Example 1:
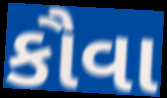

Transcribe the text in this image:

કૌવા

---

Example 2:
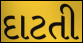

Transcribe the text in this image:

દાટતી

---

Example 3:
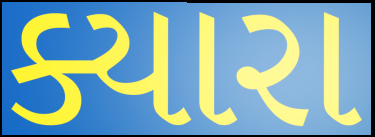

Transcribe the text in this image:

ક્યારા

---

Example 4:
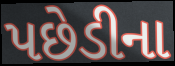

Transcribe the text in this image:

પછેડીના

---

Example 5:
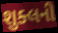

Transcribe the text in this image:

શુક્લની